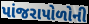
પાંજરાપોળોની